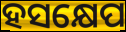
ହସକ୍ଷେପ